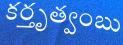
కర్తృత్వంబు